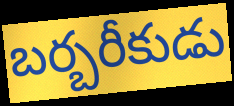
బర్బరీకుడు